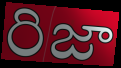
రిజా